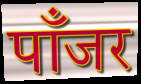
पाँजर